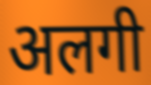
अलगी